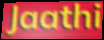
Jaathi